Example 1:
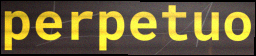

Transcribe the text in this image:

perpetuo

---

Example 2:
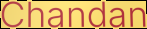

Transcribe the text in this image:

Chandan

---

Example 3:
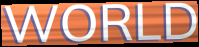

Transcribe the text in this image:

WORLD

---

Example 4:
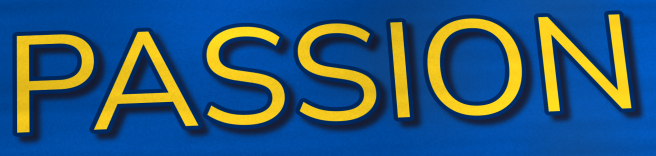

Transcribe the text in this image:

PASSION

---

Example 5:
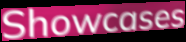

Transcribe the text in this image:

Showcases